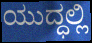
ಯುದ್ಧಲ್ಲಿ